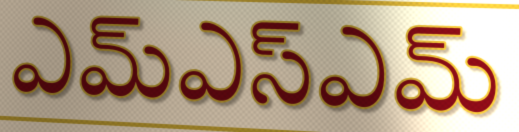
ఎమ్ఎస్ఎమ్